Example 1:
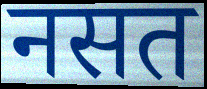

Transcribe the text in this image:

नसत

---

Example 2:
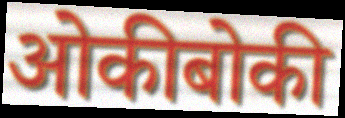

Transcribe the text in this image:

ओकीबोकी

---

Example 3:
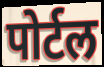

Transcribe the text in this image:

पोर्टल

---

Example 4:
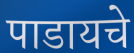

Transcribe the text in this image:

पाडायचे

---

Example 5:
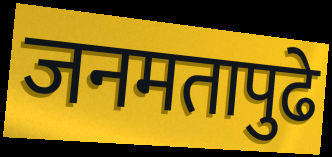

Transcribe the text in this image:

जनमतापुढे